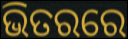
ଭିତରରେ